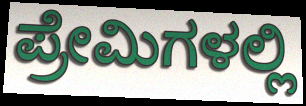
ಪ್ರೇಮಿಗಳಲ್ಲಿ